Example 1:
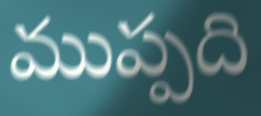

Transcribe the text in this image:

ముప్పది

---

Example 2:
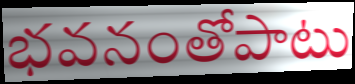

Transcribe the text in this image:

భవనంతోపాటు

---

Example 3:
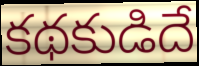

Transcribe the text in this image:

కథకుడిదే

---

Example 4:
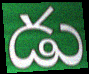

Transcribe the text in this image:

డు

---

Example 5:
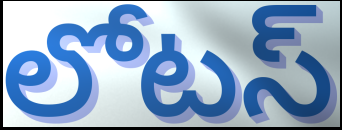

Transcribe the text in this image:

లోటస్